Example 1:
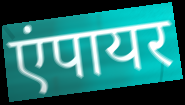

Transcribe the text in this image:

एंपायर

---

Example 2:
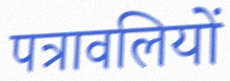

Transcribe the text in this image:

पत्रावलियों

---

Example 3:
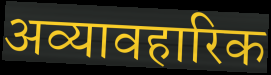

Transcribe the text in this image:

अव्यावहारिक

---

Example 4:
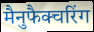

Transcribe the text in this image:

मैनुफैक्चरिंग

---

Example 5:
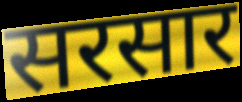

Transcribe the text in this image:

सरसार